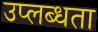
उप्लब्धता